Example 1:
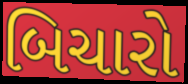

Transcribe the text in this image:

બિચારો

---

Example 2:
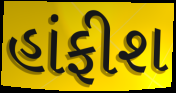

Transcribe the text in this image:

હાંફીશ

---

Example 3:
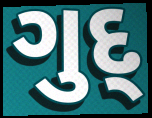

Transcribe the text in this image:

ગુદ્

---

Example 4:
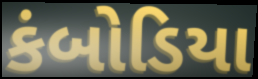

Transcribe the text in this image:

કંબોડિયા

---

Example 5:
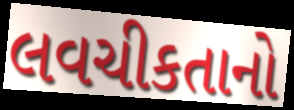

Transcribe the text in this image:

લવચીકતાનો